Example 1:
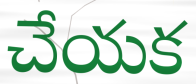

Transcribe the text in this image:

చేయక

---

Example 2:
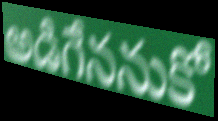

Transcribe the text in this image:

అడిగేననుకో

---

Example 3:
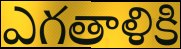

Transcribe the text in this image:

ఎగతాళికి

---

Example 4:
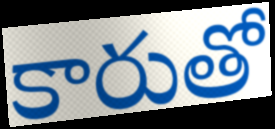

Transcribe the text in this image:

కారుతో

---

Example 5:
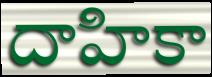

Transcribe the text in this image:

దాహికా